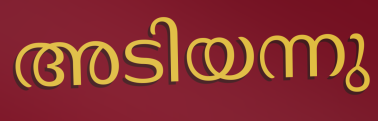
അടിയന്നു